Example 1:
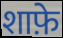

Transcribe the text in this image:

शाफ़े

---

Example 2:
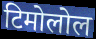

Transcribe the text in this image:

टिमोलोल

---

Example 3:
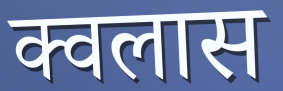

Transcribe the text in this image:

क्वलास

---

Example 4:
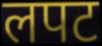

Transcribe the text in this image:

लपट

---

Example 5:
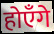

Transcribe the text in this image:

होएँगे